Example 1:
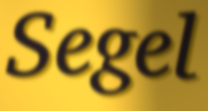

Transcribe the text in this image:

Segel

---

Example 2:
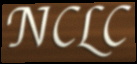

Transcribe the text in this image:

NCLC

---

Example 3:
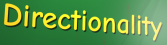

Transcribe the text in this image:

Directionality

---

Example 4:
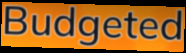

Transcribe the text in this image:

Budgeted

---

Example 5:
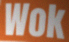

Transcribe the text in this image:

Wok